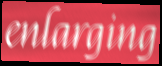
enlarging